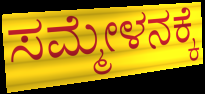
ಸಮ್ಮೇಳನಕ್ಕೆ